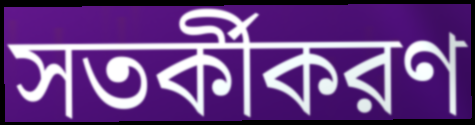
সতর্কীকরণ